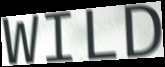
WILD